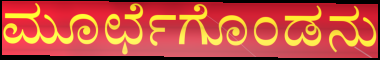
ಮೂರ್ಛೆಗೊಂಡನು